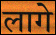
लागे